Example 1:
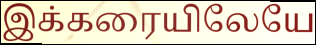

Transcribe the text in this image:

இக்கரையிலேயே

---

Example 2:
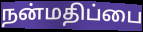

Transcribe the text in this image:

நன்மதிப்பை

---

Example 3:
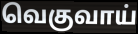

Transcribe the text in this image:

வெகுவாய்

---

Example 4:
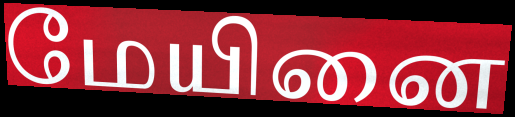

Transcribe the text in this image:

மேயினை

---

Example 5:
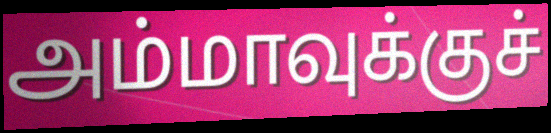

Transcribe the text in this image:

அம்மாவுக்குச்